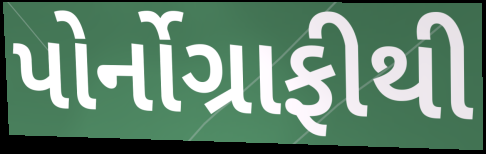
પોર્નોગ્રાફીથી